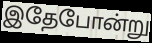
இதேபோன்று